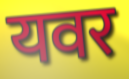
यवर